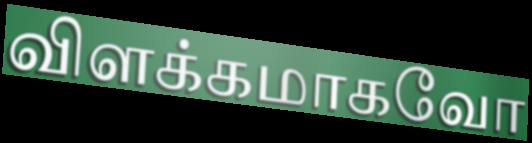
விளக்கமாகவோ